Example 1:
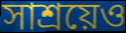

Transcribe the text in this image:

সাশ্রয়েও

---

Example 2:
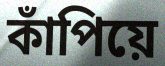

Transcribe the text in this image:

কাঁপিয়ে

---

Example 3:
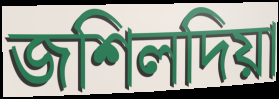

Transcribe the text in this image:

জশিলদিয়া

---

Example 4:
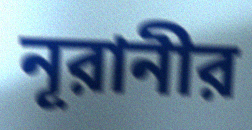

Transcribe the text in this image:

নূরানীর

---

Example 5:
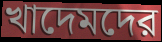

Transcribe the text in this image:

খাদেমদের